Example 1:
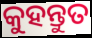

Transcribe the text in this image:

କୁହନ୍ତୁତ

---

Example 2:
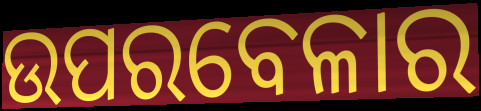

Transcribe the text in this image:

ଉପରବେଳାର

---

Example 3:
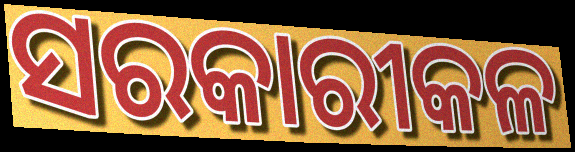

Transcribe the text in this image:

ସରକାରୀକଳ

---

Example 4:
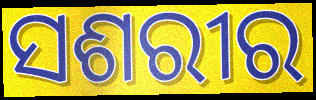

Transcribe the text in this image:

ସଶରୀର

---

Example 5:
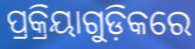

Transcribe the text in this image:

ପ୍ରକ୍ରିୟାଗୁଡ଼ିକରେ